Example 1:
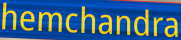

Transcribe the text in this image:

hemchandra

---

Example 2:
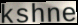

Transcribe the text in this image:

kshne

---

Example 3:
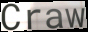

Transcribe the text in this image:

Craw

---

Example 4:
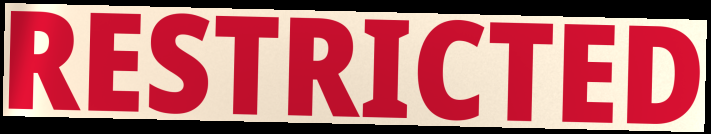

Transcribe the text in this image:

RESTRICTED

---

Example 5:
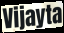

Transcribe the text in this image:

Vijayta